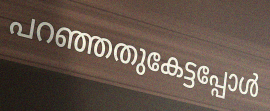
പറഞ്ഞതുകേട്ടപ്പോൾ